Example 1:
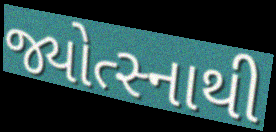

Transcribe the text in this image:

જ્યોત્સ્નાથી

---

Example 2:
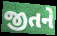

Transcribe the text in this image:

જીતને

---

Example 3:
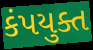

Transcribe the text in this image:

કંપયુક્ત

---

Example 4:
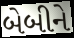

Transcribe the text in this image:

બેબીને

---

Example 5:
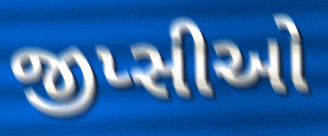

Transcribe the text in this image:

જીપ્સીઓ